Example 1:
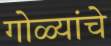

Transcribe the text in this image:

गोळ्यांचे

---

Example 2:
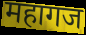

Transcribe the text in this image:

महागज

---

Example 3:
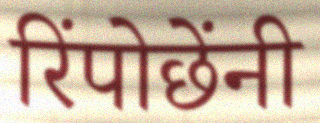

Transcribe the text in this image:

रिंपोछेंनी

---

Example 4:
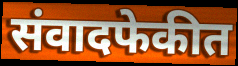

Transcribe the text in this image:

संवादफेकीत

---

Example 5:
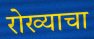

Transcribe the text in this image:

रोख्याचा